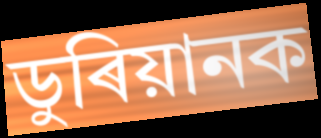
ডুৰিয়ানক